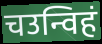
चउन्विहं